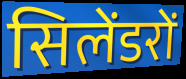
सिलेंडरों